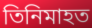
তিনিমাহত